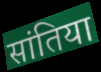
सांतिया